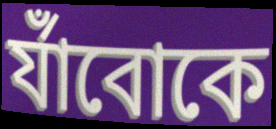
র্যাঁবোকে